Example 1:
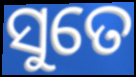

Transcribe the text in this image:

ସୁତେ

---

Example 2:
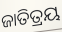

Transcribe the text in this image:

ଜାତିତ୍ରୟ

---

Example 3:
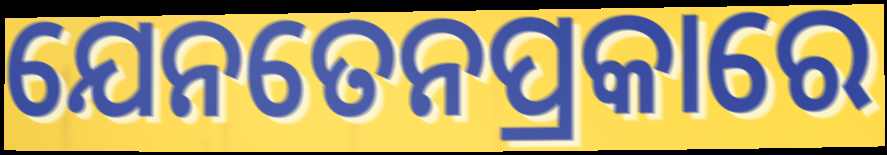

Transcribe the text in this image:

ଯେନତେନପ୍ରକାରେ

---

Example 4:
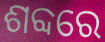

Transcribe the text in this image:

ଶବ୍ଦରେ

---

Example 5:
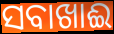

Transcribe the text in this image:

ସବାଖାଈ